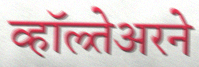
व्हॉल्तेअरने